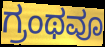
ಗ್ರಂಥವೂ